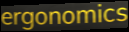
ergonomics